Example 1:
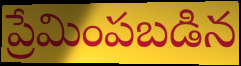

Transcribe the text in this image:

ప్రేమింపబడిన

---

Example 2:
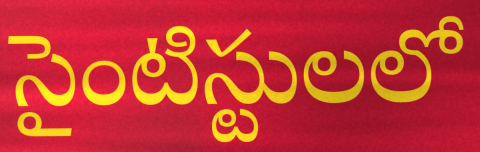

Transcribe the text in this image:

సైంటిస్టులలో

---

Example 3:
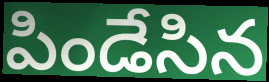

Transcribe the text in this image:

పిండేసిన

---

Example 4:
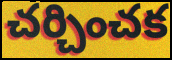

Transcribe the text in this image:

చర్చించక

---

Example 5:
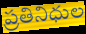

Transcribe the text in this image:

ప్రతినిధుల